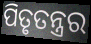
ପିତୃତନ୍ତ୍ରର